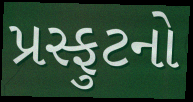
પ્રસ્ફુટનો